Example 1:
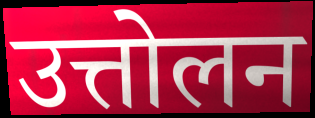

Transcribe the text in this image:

उत्तोलन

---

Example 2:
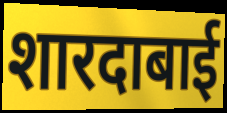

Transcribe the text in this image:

शारदाबाई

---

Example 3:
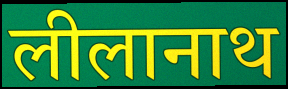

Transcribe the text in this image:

लीलानाथ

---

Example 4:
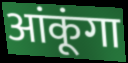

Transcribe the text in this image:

आंकूंगा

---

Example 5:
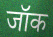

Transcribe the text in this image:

जॉक